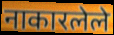
नाकारलेले